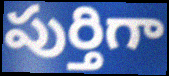
పుర్తిగా